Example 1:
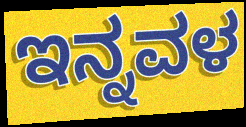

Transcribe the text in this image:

ಇನ್ನವಳ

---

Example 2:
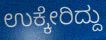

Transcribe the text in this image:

ಉಕ್ಕೇರಿದ್ದು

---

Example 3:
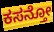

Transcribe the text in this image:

ಕಸನ್ತೋ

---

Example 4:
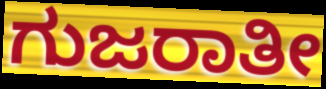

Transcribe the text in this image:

ಗುಜರಾತೀ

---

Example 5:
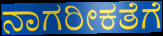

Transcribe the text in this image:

ನಾಗರೀಕತೆಗೆ